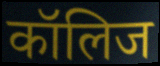
कॉलिज